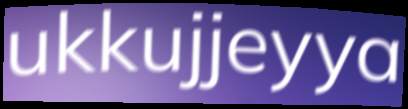
ukkujjeyya